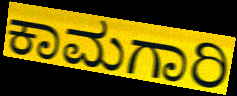
ಕಾಮಗಾರಿ